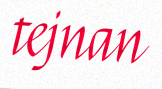
tejnan